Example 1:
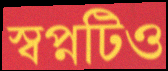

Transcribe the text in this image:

স্বপ্নটিও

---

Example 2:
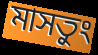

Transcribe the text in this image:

মাসতুং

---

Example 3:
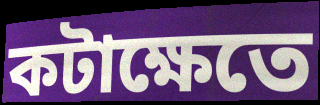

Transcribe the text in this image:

কটাক্ষেতে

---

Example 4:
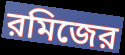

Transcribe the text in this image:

রমিজের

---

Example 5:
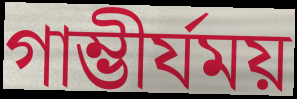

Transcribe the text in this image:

গাম্ভীর্যময়